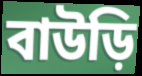
বাউড়ি